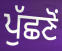
ਪੁੱਛਣੋਂ